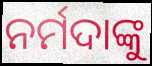
ନର୍ମଦାଙ୍କୁ